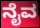
ನೈವ